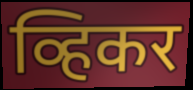
व्हिकर